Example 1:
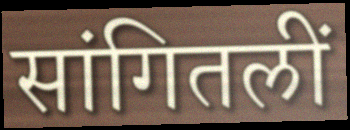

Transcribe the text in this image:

सांगितलीं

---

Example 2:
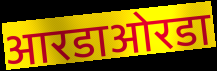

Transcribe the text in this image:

आरडाओरडा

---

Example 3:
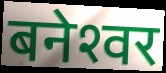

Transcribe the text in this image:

बनेश्वर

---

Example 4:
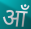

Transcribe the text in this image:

आँ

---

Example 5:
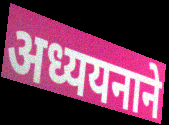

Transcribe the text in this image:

अध्ययनाने